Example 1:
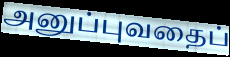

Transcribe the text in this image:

அனுப்புவதைப்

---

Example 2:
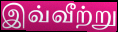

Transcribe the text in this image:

இவ்வீற்று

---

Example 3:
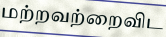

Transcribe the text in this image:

மற்றவற்றைவிட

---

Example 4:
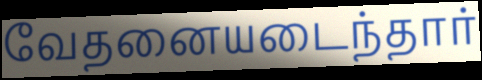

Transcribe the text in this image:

வேதனையடைந்தார்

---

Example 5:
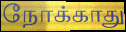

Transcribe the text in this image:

நோக்காது